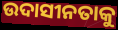
ଉଦାସୀନତାକୁ